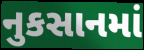
નુકસાનમાં